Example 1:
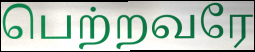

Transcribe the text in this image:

பெற்றவரே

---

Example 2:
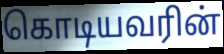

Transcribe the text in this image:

கொடியவரின்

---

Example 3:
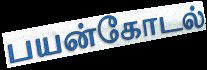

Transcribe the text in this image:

பயன்கோடல்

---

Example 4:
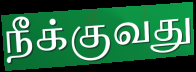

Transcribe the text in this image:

நீக்குவது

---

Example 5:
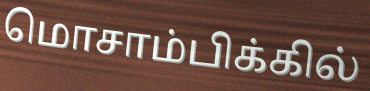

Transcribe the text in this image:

மொசாம்பிக்கில்